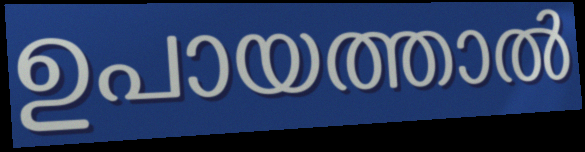
ഉപായത്താൽ